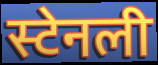
स्टेनली